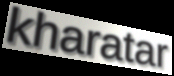
kharatar